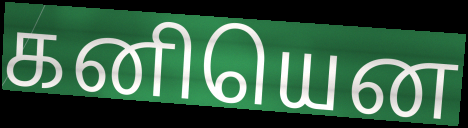
கனியென